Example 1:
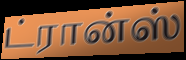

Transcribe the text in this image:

ட்ரான்ஸ்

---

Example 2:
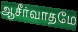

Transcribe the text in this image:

ஆசீர்வாதமே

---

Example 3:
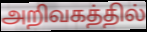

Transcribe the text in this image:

அறிவகத்தில்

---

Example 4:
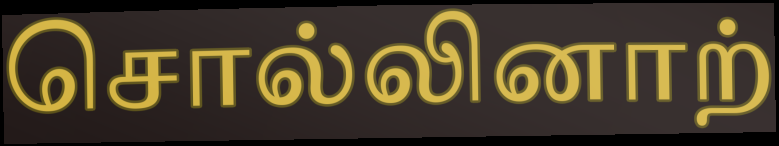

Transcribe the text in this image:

சொல்லினாற்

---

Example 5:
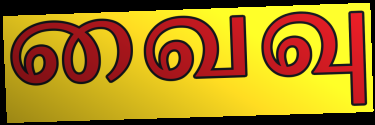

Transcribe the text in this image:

வைவு